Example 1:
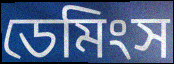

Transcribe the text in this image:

ডেমিংস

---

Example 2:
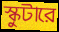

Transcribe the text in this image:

স্কুটারে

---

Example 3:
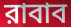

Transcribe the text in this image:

রাবাব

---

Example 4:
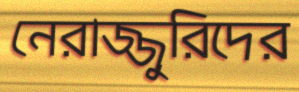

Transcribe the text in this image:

নেরাজ্জুরিদের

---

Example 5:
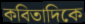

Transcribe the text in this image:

কবিতাদিকে